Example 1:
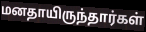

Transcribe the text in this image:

மனதாயிருந்தார்கள்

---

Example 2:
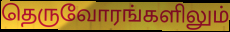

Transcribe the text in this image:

தெருவோரங்களிலும்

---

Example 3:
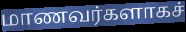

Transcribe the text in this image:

மாணவர்களாகச்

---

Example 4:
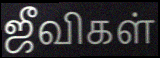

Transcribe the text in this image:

ஜீவிகள்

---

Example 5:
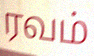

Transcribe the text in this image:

ரவம்